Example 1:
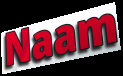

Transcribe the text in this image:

Naam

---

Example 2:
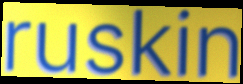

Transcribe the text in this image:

ruskin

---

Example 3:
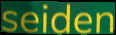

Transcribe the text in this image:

seiden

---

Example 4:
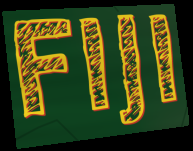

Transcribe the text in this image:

FIJI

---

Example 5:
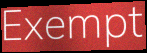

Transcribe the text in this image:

Exempt